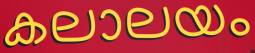
കലാലയം